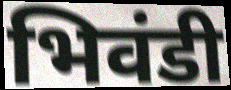
भिवंडी